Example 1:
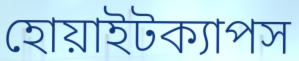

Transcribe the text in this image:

হোয়াইটক্যাপস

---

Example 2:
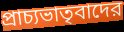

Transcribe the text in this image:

প্রাচ্যভাতৃবাদের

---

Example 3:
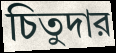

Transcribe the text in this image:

চিতুদার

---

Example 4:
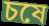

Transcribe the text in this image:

চষে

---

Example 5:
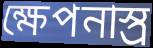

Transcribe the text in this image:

ক্ষেপনাস্ত্র